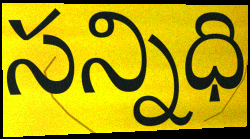
సన్నిధి